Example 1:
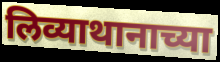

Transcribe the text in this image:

लिव्याथानाच्या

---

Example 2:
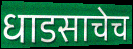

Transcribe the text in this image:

धाडसाचेच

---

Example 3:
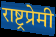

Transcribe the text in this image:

राष्ट्रप्रेमी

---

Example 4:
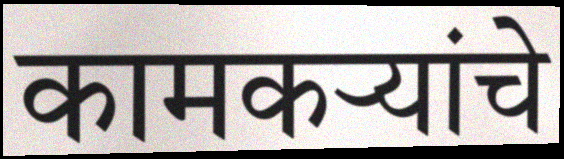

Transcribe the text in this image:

कामकऱ्यांचे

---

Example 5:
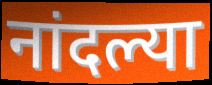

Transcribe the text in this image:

नांदल्या